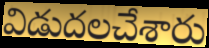
విడుదలచేశారు